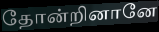
தோன்றினானே